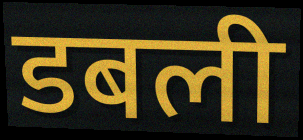
डबली